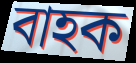
বাহক